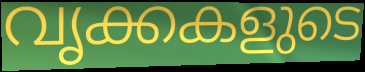
വൃക്കകളുടെ